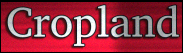
Cropland